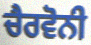
ਚੈਰਵੋਨੀ